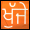
ਖੁੱਜੇ